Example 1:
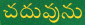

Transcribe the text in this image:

చదువును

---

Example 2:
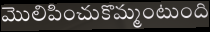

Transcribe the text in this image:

మొలిపించుకొమ్మంటుంది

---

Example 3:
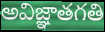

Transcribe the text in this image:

అవిజ్ఞాతగతి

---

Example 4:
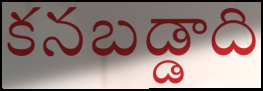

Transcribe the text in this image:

కనబడ్డాది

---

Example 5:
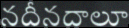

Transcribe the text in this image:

నదీనదాలూ